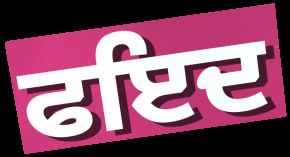
ਫਇਦ